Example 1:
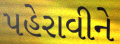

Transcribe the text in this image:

પહેરાવીને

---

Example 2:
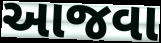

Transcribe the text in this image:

આજવા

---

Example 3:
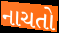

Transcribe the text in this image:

નાચતો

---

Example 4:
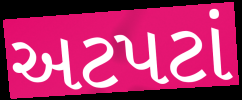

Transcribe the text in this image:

અટપટાં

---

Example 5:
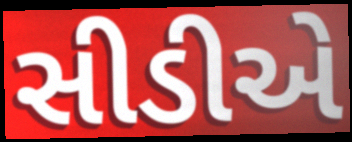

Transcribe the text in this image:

સીડીએ